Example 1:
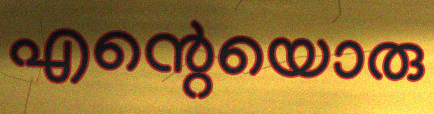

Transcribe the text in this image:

എന്റെയൊരു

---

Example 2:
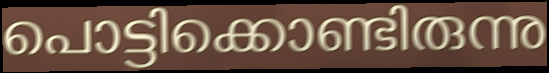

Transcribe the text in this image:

പൊട്ടിക്കൊണ്ടിരുന്നു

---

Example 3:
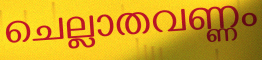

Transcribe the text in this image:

ചെല്ലാതവണ്ണം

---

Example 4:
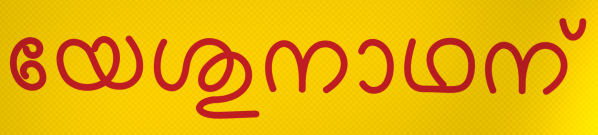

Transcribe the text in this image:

യേശുനാഥന്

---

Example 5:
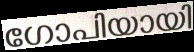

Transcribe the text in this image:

ഗോപിയായി